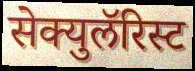
सेक्युलॅरिस्ट